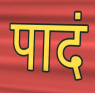
पादं